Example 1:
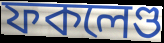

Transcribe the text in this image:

ফকলেণ্ড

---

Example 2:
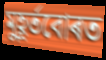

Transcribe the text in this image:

মুহূৰ্তবোৰত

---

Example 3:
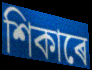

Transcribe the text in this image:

শিকাৰে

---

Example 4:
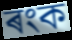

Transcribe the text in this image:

ৰংক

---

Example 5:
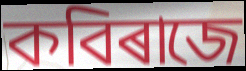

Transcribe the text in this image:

কবিৰাজে